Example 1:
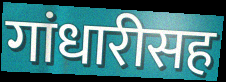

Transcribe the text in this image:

गांधारीसह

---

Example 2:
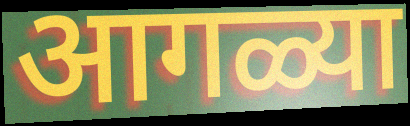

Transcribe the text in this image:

आगळ्या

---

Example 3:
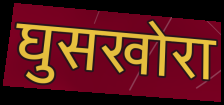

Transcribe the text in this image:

घुसखोरा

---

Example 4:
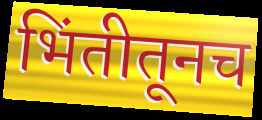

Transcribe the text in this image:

भिंतीतूनच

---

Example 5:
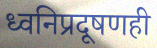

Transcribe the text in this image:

ध्वनिप्रदूषणही